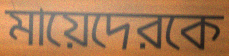
মায়েদেরকে